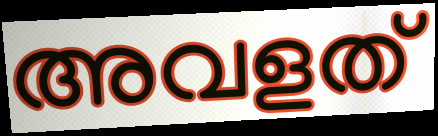
അവളത്